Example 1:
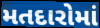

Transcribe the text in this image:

મતદારોમાં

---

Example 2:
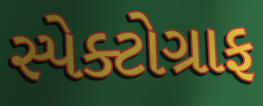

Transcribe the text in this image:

સ્પેક્ટોગ્રાફ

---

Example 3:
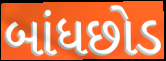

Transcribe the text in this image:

બાંધછોડ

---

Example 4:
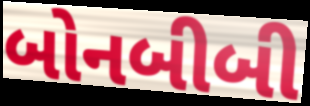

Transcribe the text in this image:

બોનબીબી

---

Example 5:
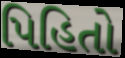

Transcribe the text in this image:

પિહિતો